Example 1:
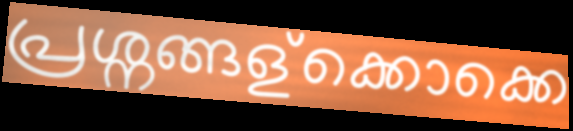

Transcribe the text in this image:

പ്രശ്നങ്ങള്ക്കൊക്കെ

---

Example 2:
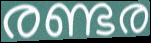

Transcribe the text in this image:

രണ്ടര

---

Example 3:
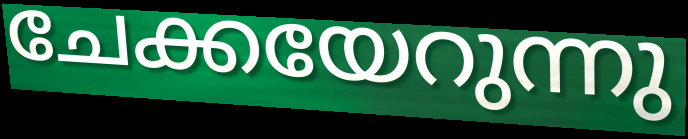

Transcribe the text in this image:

ചേക്കയേറുന്നു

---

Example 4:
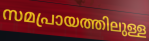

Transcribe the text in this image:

സമപ്രായത്തിലുള്ള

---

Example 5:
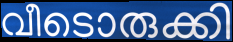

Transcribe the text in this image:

വീടൊരുക്കി